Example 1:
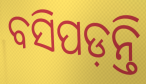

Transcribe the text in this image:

ବସିପଡ଼ନ୍ତି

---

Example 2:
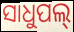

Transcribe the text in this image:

ସାଧୁପଲ୍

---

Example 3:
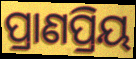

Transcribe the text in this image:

ପ୍ରାଣପ୍ରିୟ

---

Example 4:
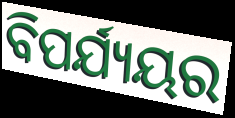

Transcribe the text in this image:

ବିପର୍ଯ୍ୟୟର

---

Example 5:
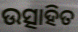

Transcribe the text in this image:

ଉତ୍ସାହିତ